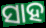
ସାହ